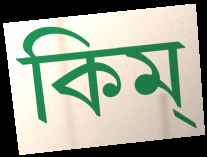
কিম্